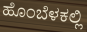
ಹೊಂಬೆಳಕಲ್ಲಿ